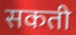
सकती